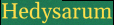
Hedysarum